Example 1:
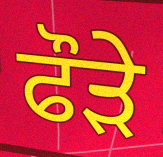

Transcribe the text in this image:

ਫੌੜੇ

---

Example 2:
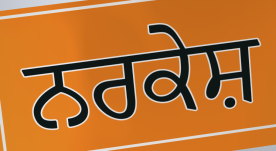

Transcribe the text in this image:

ਨਰਕੇਸ਼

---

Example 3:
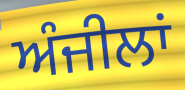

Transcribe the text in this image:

ਅੰਜੀਲਾਂ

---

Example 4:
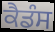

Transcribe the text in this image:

ਕੈਡੰਸ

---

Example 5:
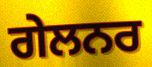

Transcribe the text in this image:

ਗੇਲਨਰ